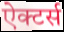
ऐक्‍टर्स